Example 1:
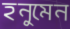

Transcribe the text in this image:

হনুমেন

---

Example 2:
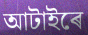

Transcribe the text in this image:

আটাইৰে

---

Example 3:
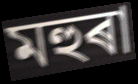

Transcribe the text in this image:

মহুৰা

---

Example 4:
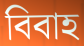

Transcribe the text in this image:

বিবাহ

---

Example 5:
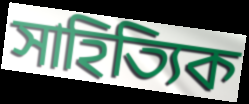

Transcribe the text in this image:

সাহিত্যিক